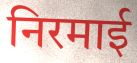
निरमाई